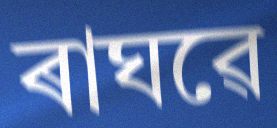
ৰাঘৱে